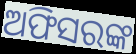
ଅଫିସରଙ୍କ